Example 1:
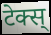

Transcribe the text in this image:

टेक्स्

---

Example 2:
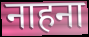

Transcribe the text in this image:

नाहना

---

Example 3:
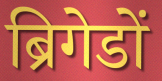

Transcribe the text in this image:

ब्रिगेडों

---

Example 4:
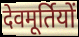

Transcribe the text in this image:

देवमूर्तियों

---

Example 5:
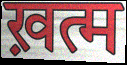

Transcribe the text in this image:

ख़त्‍म